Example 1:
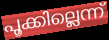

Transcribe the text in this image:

പൂക്കില്ലെന്ന്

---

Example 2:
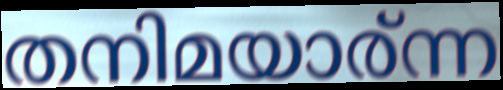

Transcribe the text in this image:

തനിമയാര്ന്ന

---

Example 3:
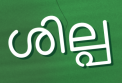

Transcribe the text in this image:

ശില്പ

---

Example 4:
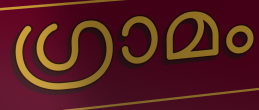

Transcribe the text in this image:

ഗ്രാമം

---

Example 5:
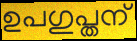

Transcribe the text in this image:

ഉപഗുപ്തന്